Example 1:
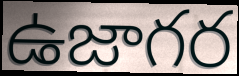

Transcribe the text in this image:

ఉజాగర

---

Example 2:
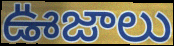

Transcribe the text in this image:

ఊజాలు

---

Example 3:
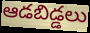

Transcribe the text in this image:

ఆడబిడ్డలు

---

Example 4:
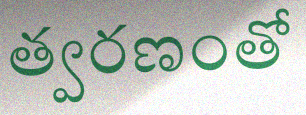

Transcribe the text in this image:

త్వరణంతో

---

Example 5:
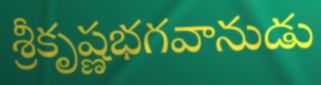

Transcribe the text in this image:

శ్రీకృష్ణభగవానుడు